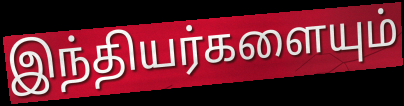
இந்தியர்களையும்